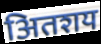
अितशय